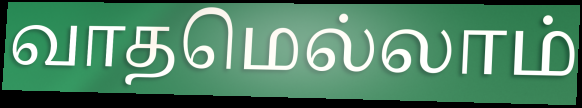
வாதமெல்லாம்